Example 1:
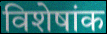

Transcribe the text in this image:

विशेषांक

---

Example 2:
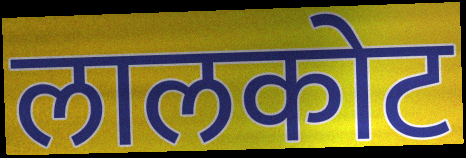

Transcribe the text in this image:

लालकोट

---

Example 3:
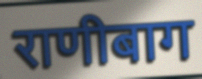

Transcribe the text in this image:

राणीबाग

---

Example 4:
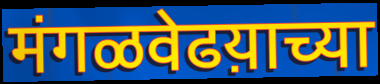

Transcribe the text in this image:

मंगळवेढय़ाच्या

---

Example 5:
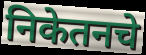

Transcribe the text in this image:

निकेतनचे